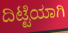
ದಿಟ್ಟೆಯಾಗಿ